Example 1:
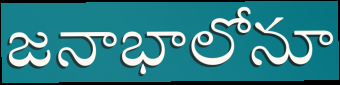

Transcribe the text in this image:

జనాభాలోనూ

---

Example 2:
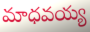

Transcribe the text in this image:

మాధవయ్య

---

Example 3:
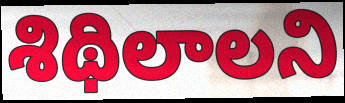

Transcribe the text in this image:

శిథిలాలని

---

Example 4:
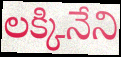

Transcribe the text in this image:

లక్కినేని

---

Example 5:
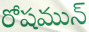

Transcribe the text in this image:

రోషమున్